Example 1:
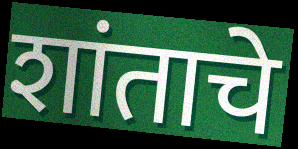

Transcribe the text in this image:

शांताचे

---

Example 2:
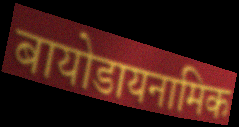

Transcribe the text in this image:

बायोडायनामिक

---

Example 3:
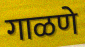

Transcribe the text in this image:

गाळणे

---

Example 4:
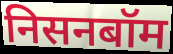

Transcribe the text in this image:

निसनबॉम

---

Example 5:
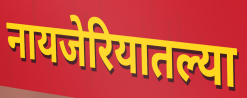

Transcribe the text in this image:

नायजेरियातल्या